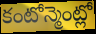
కంటోన్మెంట్లో